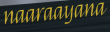
naaraayana